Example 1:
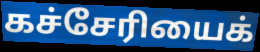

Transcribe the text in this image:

கச்சேரியைக்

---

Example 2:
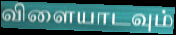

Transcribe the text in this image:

விளையாடவும்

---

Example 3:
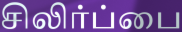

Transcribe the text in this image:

சிலிர்ப்பை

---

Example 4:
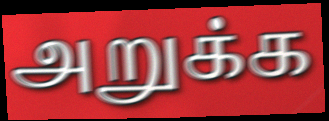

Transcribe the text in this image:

அறுக்க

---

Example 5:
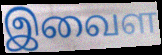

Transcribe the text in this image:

இவைள